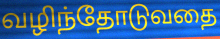
வழிந்தோடுவதை